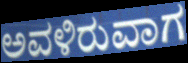
ಅವಳಿರುವಾಗ